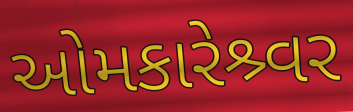
ઓમકારેશ્ર્વર